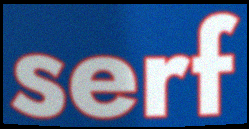
serf